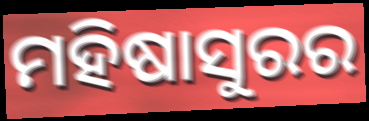
ମହିଷାସୁରର